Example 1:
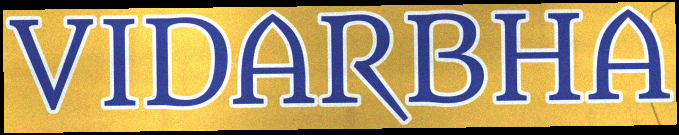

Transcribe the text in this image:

VIDARBHA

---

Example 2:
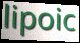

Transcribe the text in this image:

lipoic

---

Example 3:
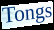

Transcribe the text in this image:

Tongs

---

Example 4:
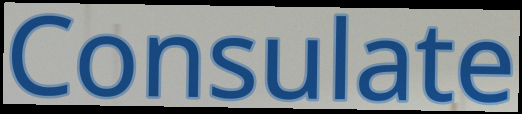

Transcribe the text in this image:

Consulate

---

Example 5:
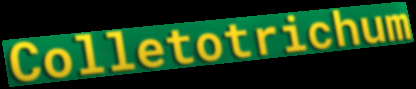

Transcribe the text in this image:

Colletotrichum